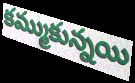
కమ్ముకున్నయి